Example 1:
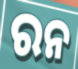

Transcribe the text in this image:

ରନ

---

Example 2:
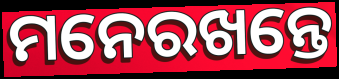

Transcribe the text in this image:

ମନେରଖନ୍ତେ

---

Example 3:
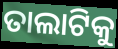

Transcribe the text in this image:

ତାଲାଟିକୁ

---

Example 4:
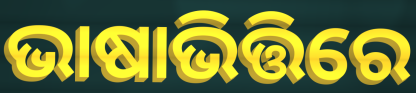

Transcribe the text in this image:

ଭାଷାଭିତ୍ତିରେ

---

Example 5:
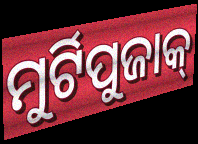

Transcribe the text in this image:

ମୁର୍ଟିପୁଜାକ୍